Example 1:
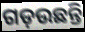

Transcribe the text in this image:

ଗଡ଼ଉଛନ୍ତି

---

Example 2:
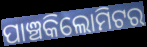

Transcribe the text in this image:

ପାଞ୍ଚକିଲୋମିଟର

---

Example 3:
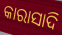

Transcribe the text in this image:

କାରାସାଦି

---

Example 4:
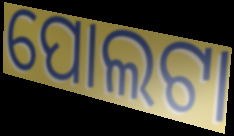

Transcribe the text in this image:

ପୋଲଟା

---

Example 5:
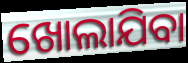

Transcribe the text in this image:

ଖୋଲାଯିବା